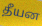
தீயன